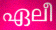
ഏലീ